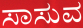
ಸಾಸುವ